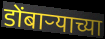
डोंबाऱ्याच्या